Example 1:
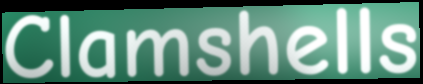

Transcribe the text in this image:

Clamshells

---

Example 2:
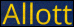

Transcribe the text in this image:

Allott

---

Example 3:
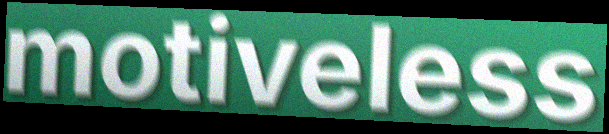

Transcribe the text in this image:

motiveless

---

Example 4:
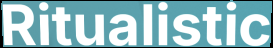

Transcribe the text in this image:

Ritualistic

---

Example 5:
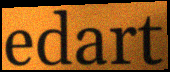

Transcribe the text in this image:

edart